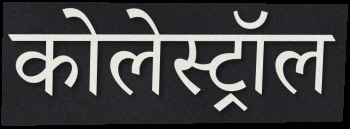
कोलेस्ट्रॉल